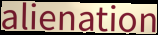
alienation